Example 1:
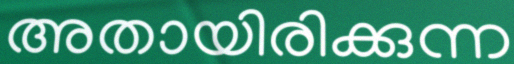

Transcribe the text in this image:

അതായിരിക്കുന്ന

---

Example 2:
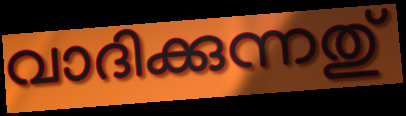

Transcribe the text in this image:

വാദിക്കുന്നതു്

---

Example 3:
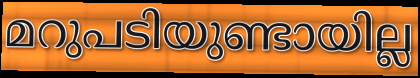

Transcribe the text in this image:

മറുപടിയുണ്ടായില്ല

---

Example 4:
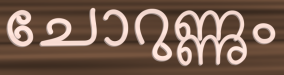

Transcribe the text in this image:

ചോറുണ്ണും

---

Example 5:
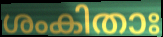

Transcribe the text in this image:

ശംകിതാഃ